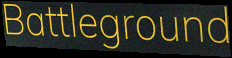
Battleground